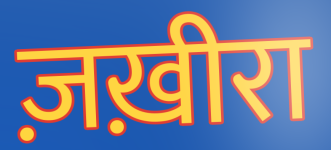
ज़ख़ीरा